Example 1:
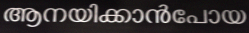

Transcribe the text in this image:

ആനയിക്കാൻപോയ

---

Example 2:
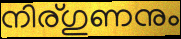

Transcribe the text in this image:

നിര്ഗുണനും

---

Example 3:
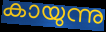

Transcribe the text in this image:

കായുന്നു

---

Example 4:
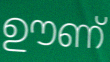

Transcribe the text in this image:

ഊണ്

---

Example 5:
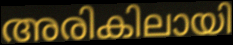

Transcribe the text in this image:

അരികിലായി